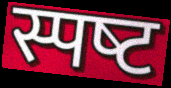
स्‍पष्‍ट